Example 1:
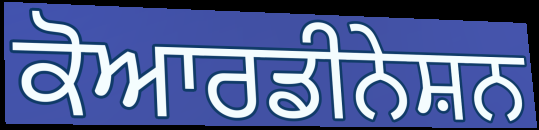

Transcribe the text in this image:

ਕੋਆਰਡੀਨੇਸ਼ਨ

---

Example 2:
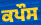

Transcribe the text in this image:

ਕਪੌਸ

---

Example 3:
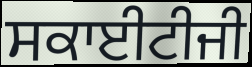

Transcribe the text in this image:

ਸਕਾਈਟੀਜੀ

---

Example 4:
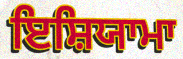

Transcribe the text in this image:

ਇਸ਼ਿਯਾਮਾ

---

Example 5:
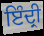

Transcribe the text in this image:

ਇੰਦ੍ਰੀ